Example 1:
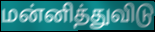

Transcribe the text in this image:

மன்னித்துவிடு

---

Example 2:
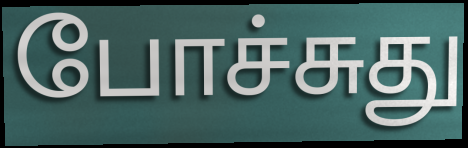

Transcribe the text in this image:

போச்சுது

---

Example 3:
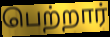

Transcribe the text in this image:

பெற்றார்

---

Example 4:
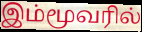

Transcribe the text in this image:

இம்மூவரில்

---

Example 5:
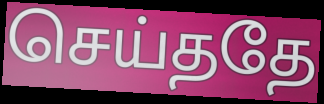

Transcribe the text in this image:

செய்ததே